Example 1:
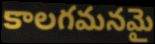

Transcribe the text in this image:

కాలగమనమై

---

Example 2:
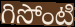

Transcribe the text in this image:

గిసోంటి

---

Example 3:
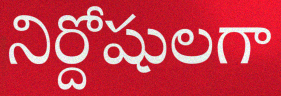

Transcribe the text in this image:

నిర్దోషులగా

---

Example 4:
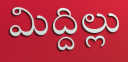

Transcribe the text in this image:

మిద్దిల్లు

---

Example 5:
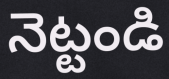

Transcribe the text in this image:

నెట్టండి